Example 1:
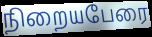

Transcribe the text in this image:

நிறையபேரை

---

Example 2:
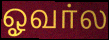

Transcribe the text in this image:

ஓவர்ல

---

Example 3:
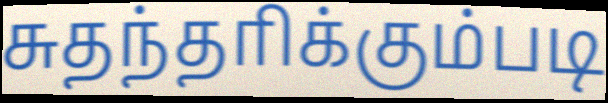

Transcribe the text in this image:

சுதந்தரிக்கும்படி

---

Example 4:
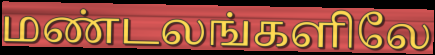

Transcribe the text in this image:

மண்டலங்களிலே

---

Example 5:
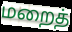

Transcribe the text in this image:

மறைத்